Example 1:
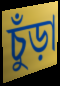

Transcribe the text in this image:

চুঁড়া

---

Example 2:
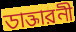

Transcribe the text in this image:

ডাক্তারনী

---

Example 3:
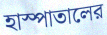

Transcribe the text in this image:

হাস্পাতালের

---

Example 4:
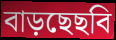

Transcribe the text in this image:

বাড়ছেছবি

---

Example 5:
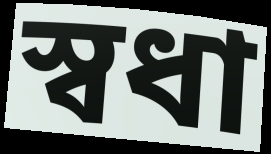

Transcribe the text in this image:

স্বধা